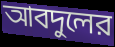
আবদুলের